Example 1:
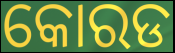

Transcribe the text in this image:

କୋରଡ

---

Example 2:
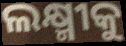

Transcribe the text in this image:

ଲକ୍ଷ୍ମୀକୁ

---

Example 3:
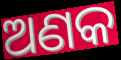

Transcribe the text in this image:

ଅଣକ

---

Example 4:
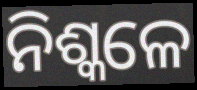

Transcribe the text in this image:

ନିଶ୍କଳେ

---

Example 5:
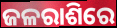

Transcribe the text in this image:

ଜଳରାଶିରେ